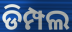
ଡିମ୍ପଲ